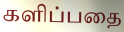
களிப்பதை